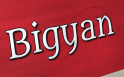
Bigyan